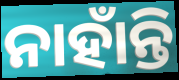
ନାହାଁନ୍ତି